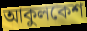
আকুলকেশ